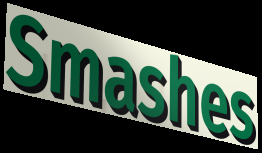
Smashes